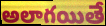
అలాగయితే